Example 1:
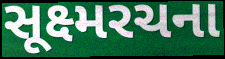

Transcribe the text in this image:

સૂક્ષ્મરચના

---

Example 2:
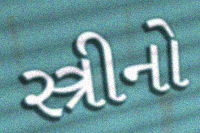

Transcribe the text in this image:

સ્ત્રીનો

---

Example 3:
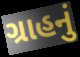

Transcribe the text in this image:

ગ્રાહનું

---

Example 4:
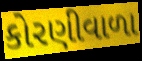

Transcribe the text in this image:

કોરણીવાળા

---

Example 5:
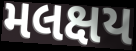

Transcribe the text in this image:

મલક્ષય